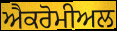
ਐਕਰੋਮੀਅਲ